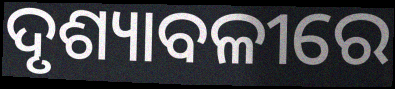
ଦୃଶ୍ୟାବଳୀରେ